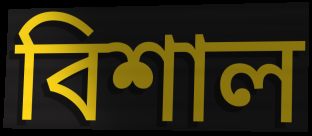
বিশাল